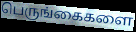
பெருங்கைகளை